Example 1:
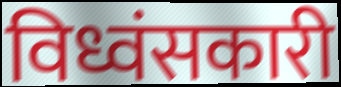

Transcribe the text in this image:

विध्वंसकारी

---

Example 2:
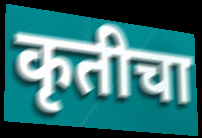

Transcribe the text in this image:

कृतीचा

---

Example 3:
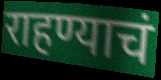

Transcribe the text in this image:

राहण्याचं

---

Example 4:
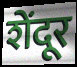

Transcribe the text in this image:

शेंदूर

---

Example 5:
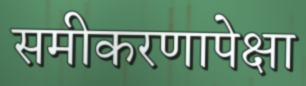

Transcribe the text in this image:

समीकरणापेक्षा